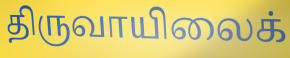
திருவாயிலைக்